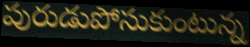
పురుడుపోసుకుంటున్న